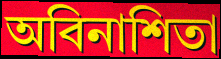
অবিনাশিতা